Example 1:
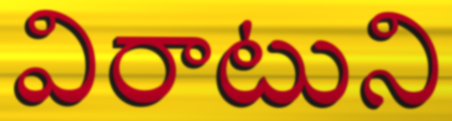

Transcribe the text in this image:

విరాటుని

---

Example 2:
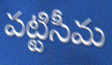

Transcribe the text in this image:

పట్టిసీమ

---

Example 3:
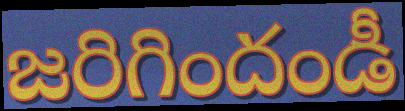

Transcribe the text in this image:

జరిగిందండీ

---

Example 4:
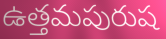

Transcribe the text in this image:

ఉత్తమపురుష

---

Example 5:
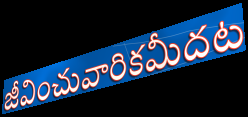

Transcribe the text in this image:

జీవించువారికమీదట